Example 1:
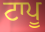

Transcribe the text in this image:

ਟਾਪੂ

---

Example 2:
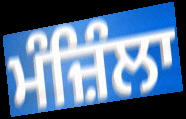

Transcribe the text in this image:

ਮੰਜ਼ਿੰਲਾ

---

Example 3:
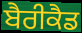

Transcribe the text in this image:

ਬੈਰੀਕੈਡ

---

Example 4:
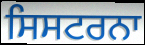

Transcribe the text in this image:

ਸਿਸਟਰਨਾ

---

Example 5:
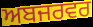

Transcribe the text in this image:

ਅਬਜਰਵਰ